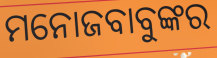
ମନୋଜବାବୁଙ୍କର